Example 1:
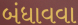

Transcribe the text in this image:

બંધાવવા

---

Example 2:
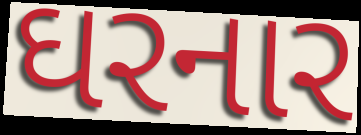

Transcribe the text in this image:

ઘરનાર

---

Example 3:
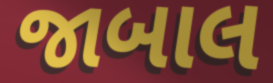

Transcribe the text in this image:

જાબાલ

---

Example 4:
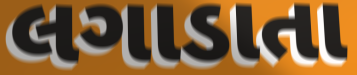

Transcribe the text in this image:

લગાડાતા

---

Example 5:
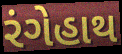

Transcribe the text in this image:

રંગેહાથ